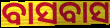
ବାସବାସ